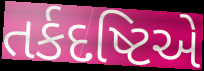
તર્કદષ્ટિએ